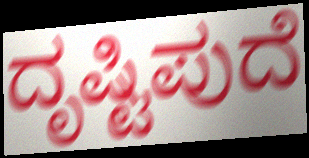
ದೃಷ್ಟಿಪುದೆ